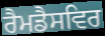
ਰੈਮਡੈਸਵਿਰ